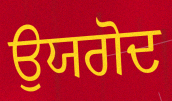
ਉਯਗੋਦ